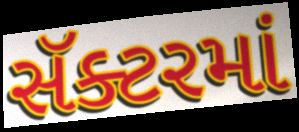
સૅક્ટરમાં